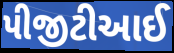
પીજીટીઆઈ